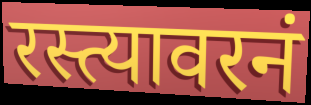
रस्त्यावरनं